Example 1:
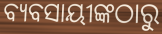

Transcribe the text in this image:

ବ୍ୟବସାୟୀଙ୍କଠାରୁ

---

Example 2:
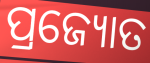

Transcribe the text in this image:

ପ୍ରଜ୍ୟୋତ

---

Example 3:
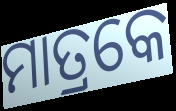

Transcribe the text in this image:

ମାତ୍ରକେ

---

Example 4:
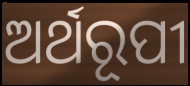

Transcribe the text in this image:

ଅର୍ଥରୂପୀ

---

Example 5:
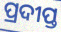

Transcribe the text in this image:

ପ୍ରଦୀପ୍ତ